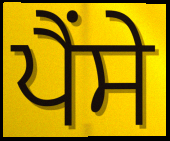
ਪੈਂਸੇ